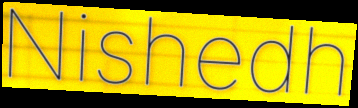
Nishedh